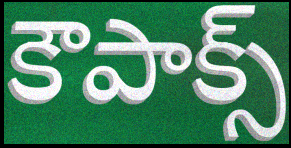
కౌపాక్స్